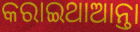
କରାଇଥାଆନ୍ତା